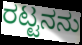
ರಟ್ಟನನು